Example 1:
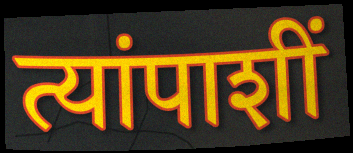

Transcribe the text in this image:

त्यांपाशीं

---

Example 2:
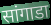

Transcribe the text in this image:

सांगाडा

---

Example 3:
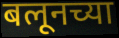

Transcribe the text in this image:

बलूनच्या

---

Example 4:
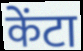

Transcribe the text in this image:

केंटा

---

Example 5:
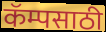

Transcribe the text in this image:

कॅम्पसाठी